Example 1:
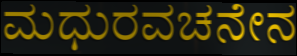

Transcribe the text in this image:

ಮಧುರವಚನೇನ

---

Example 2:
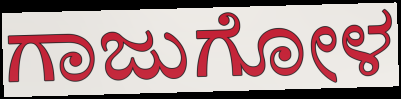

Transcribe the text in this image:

ಗಾಜುಗೋಳ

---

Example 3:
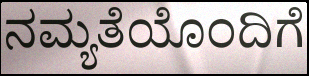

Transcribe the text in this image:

ನಮ್ಯತೆಯೊಂದಿಗೆ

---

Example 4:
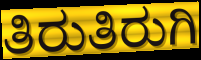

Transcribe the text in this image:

ತಿರುತಿರುಗಿ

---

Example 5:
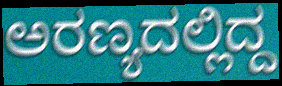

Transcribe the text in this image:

ಅರಣ್ಯದಲ್ಲಿದ್ದ